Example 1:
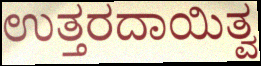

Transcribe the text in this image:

ಉತ್ತರದಾಯಿತ್ವ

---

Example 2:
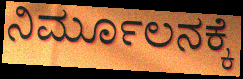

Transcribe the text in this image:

ನಿರ್ಮೂಲನಕ್ಕೆ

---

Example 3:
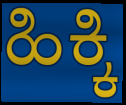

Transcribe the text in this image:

ಹಿಕ್ಕಿ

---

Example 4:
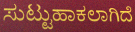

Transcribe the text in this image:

ಸುಟ್ಟುಹಾಕಲಾಗಿದೆ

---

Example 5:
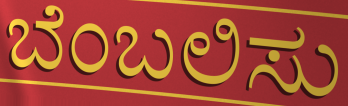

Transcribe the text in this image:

ಬೆಂಬಲಿಸು